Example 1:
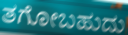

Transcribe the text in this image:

ತಗೋಬಹುದು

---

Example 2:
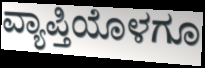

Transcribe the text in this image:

ವ್ಯಾಪ್ತಿಯೊಳಗೂ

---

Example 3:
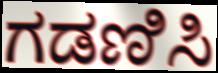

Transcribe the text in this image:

ಗಡಣಿಸಿ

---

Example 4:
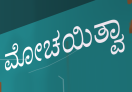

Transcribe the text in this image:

ಮೋಚಯಿತ್ವಾ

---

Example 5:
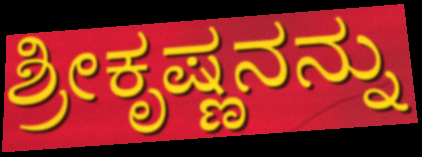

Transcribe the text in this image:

ಶ್ರೀಕೃಷ್ಣನನ್ನು